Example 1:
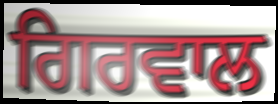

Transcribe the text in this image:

ਗਿਰਵਾਲ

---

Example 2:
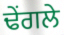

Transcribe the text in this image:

ਢੇਂਗਲੇ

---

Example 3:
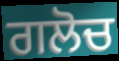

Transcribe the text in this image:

ਗਲੋਚ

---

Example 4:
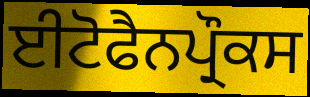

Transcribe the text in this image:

ਈਟੋਫੈਨਪ੍ਰੌਕਸ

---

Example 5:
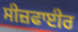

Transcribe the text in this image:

ਸੀਜ਼ਫਾਈਰ